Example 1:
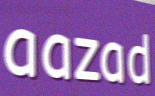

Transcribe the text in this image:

aazad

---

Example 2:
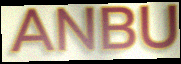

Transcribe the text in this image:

ANBU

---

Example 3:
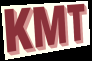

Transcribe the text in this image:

KMT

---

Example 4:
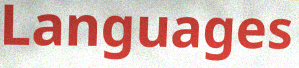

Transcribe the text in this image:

Languages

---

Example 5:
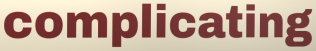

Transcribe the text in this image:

complicating